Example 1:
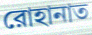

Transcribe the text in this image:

রোহানাত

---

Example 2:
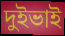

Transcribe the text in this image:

দুইভাই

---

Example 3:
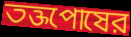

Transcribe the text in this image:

তক্তপোষের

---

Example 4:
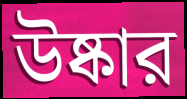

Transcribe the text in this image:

উষ্কার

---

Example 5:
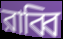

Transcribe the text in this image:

রাব্বি